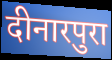
दीनारपुरा